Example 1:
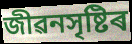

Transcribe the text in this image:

জীৱনসৃষ্টিৰ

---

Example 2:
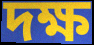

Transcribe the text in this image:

দক্ষ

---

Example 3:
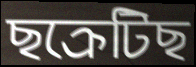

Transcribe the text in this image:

ছক্ৰেটিছ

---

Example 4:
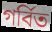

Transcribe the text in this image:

গৰ্বিত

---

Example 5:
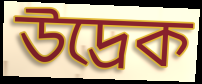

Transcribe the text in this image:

উদ্ৰেক